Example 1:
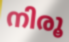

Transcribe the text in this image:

നിരൂ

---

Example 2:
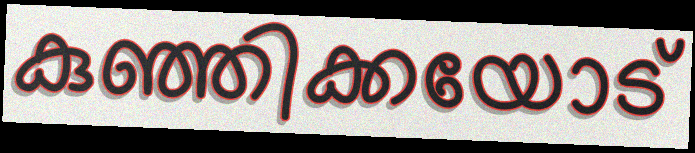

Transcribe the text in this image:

കുഞ്ഞിക്കയോട്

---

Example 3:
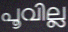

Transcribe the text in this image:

പൂവില്ല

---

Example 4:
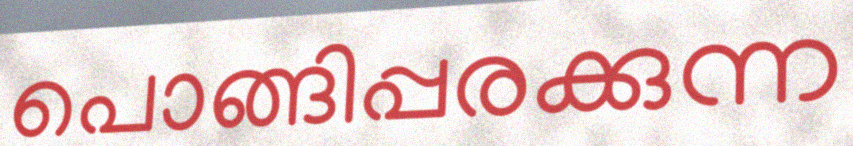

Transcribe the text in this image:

പൊങ്ങിപ്പരക്കുന്ന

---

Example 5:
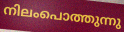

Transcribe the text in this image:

നിലംപൊത്തുന്നു